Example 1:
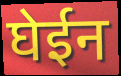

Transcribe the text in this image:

घेईन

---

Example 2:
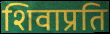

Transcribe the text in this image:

शिवाप्रति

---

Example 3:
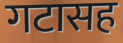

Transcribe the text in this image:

गटासह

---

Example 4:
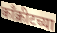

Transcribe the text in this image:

काँक्रीटच्या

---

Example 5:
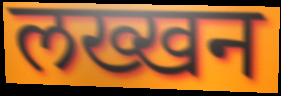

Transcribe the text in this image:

लख्खन